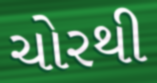
ચોરથી